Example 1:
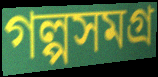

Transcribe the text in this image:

গল্পসমগ্র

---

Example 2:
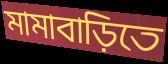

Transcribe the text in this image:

মামাবাড়িতে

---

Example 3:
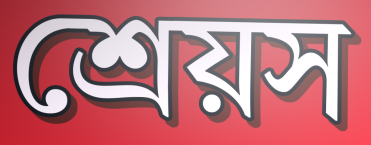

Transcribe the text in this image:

শ্রেয়স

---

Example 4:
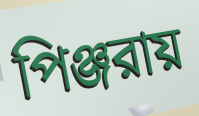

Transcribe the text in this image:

পিঞ্জরায়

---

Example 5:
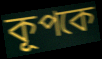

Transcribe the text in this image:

কূপকে